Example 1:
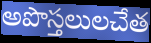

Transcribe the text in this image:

అపొస్తలులచేత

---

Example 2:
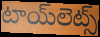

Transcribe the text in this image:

టాయ్‌లెట్స్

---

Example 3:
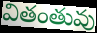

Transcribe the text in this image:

వితంతువు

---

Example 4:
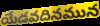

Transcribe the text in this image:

యేడవదినమున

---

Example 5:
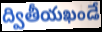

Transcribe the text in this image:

ద్వితీయఖండే